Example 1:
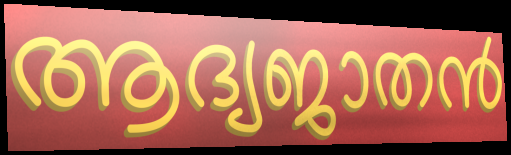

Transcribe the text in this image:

ആദ്യജാതൻ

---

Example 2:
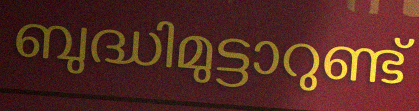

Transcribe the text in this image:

ബുദ്ധിമുട്ടാറുണ്ട്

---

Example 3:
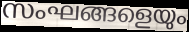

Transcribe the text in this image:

സംഘങ്ങളെയും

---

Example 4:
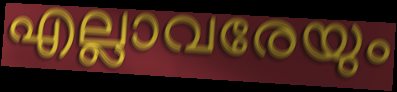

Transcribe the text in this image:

എല്ലാവരേയും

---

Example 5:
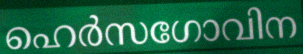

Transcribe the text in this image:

ഹെർസഗോവിന